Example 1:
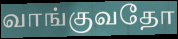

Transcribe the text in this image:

வாங்குவதோ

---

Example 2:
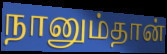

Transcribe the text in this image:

நானும்தான்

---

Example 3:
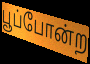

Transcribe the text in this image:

பூப்போன்ற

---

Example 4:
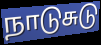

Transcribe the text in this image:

நாடுசுடு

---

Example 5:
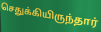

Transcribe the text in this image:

செதுக்கியிருந்தார்